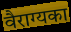
वैराग्यका